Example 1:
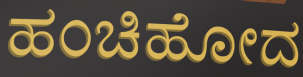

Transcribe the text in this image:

ಹಂಚಿಹೋದ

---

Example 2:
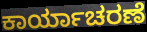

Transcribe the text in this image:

ಕಾರ್ಯಾಚರಣೆ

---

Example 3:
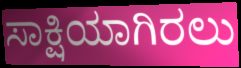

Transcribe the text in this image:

ಸಾಕ್ಷಿಯಾಗಿರಲು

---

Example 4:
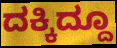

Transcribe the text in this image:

ದಕ್ಕಿದ್ದೂ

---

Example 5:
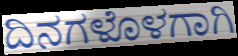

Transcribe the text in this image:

ದಿನಗಳೊಳಗಾಗಿ